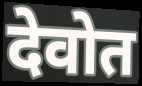
देवोत